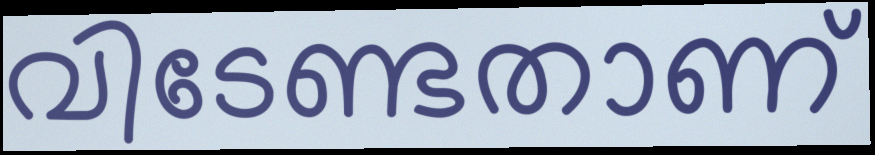
വിടേണ്ടതാണ്